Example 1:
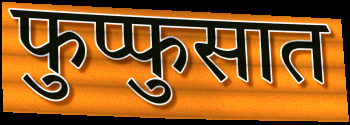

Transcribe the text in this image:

फुप्फुसात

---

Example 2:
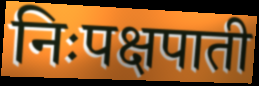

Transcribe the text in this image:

निःपक्षपाती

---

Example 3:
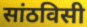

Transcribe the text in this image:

सांठविसी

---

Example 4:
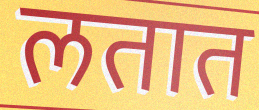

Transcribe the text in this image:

लतात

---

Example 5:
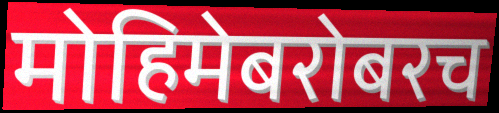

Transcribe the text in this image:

मोहिमेबरोबरच